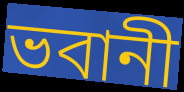
ভবানী